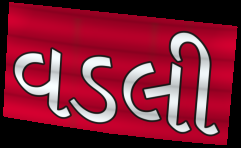
વડલી